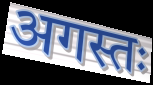
अगस्तः